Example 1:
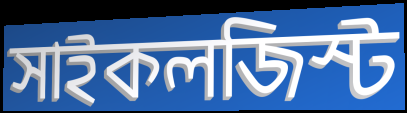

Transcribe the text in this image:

সাইকলজিস্ট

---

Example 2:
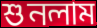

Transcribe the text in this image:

শুনলাম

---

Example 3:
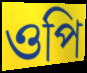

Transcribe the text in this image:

ওপি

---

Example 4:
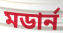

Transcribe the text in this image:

মডার্ন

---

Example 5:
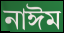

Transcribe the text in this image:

নাঈম